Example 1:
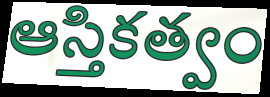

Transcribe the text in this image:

ఆస్తికత్వం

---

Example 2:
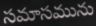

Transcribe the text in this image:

సమాసమును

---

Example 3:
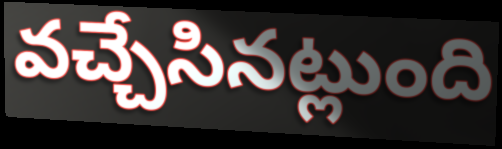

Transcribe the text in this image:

వచ్చేసినట్లుంది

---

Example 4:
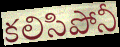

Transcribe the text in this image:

కలిసిపోనీ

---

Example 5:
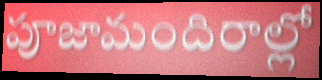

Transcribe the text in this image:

పూజామందిరాల్లో